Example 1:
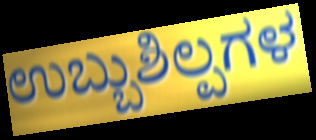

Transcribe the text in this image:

ಉಬ್ಬುಶಿಲ್ಪಗಳ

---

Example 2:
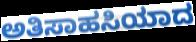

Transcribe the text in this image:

ಅತಿಸಾಹಸಿಯಾದ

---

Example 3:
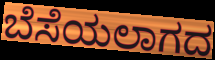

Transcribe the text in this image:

ಬೆಸೆಯಲಾಗದ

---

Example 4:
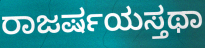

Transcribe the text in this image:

ರಾಜರ್ಷಯಸ್ತಥಾ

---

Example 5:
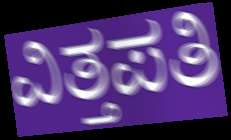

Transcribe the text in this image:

ವಿತ್ತಪತಿ